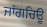
ਜਾਂਗਚਿਊ